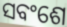
ସବଂଶେ